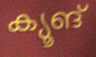
ക്യൂങ്